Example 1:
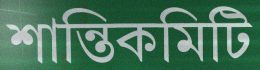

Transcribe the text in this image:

শান্তিকমিটি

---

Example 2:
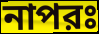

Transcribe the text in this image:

নাপরঃ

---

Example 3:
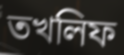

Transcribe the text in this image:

তখলিফ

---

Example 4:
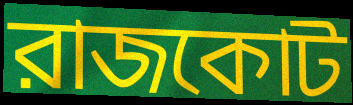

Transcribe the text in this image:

রাজকোট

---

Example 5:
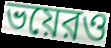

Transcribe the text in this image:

ভয়েরও